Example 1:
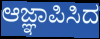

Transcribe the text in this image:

ಆಜ್ಞಾಪಿಸಿದ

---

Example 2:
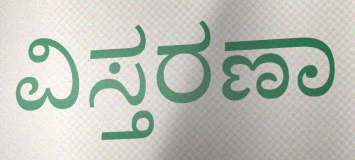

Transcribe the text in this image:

ವಿಸ್ತರಣಾ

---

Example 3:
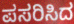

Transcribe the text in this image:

ಪಸರಿಸಿದ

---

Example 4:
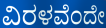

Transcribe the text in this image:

ವಿರಳವೆಂದೇ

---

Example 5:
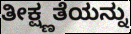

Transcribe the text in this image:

ತೀಕ್ಷ್ಣತೆಯನ್ನು